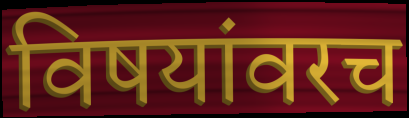
विषयांवरच